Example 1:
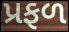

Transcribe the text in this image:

પ્રફળ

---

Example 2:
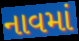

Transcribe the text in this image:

નાવમાં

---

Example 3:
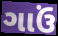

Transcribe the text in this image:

ગાઉં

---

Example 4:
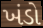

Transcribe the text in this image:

ખંડો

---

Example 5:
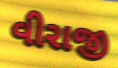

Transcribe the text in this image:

વીરાજી